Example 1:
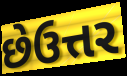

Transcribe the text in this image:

છેઉત્તર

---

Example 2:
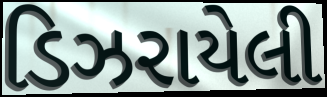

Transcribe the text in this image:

ડિઝરાયેલી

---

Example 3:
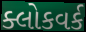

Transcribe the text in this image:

ક્લોકવર્ક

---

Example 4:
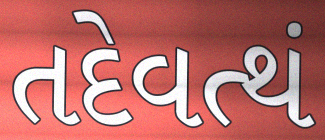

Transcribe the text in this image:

તદેવત્થં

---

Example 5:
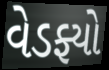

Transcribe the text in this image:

વેડફ્યો